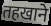
तहखाने